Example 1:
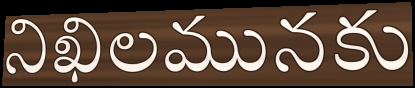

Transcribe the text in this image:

నిఖిలమునకు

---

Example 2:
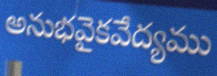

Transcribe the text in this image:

అనుభవైకవేద్యము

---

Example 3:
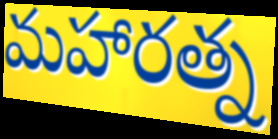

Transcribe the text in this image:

మహారత్న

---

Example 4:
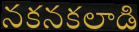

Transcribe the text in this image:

నకనకలాడి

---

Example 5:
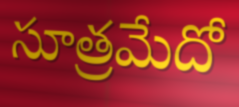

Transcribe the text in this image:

సూత్రమేదో